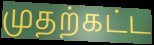
முதற்கட்ட